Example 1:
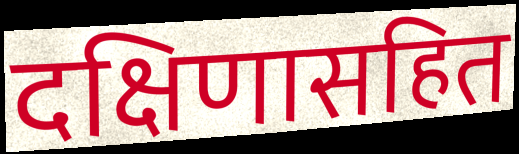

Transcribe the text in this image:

दक्षिणासहित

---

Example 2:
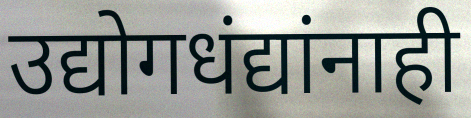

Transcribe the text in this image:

उद्योगधंद्यांनाही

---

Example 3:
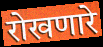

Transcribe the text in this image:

रोखणारे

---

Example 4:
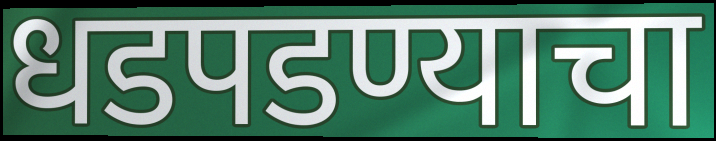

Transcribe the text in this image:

धडपडण्याचा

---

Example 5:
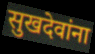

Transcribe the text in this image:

सुखदेवांना